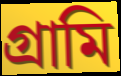
গ্রামি